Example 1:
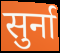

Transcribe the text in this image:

सुर्ना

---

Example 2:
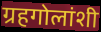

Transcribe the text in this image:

ग्रहगोलांशी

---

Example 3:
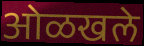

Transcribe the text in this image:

ओळखले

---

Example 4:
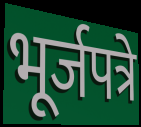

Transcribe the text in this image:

भूर्जपत्रे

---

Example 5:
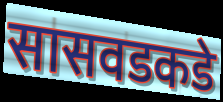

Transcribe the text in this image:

सासवडकडे